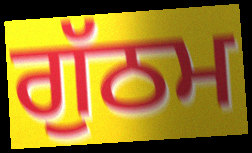
ਗੁੱਠਮ